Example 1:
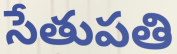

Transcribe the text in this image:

సేతుపతి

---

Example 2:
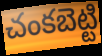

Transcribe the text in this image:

చంకబెట్టి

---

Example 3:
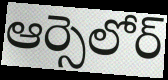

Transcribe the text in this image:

ఆర్సెలోర్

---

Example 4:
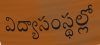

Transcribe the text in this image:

విద్యాసంస్థల్లో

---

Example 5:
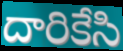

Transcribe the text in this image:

దారికేసి